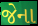
જેના